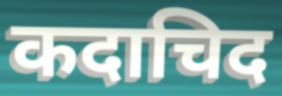
कदाचिद